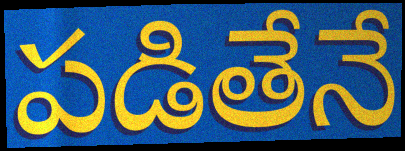
పడితేనే